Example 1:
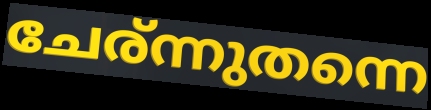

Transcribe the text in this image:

ചേര്ന്നുതന്നെ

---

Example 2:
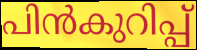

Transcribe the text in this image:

പിൻകുറിപ്പ്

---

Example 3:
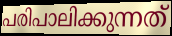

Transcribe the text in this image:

പരിപാലിക്കുന്നത്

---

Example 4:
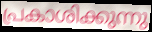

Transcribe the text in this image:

പ്രകാശിക്കുന്നു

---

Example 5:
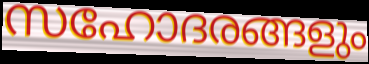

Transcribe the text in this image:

സഹോദരങ്ങളും